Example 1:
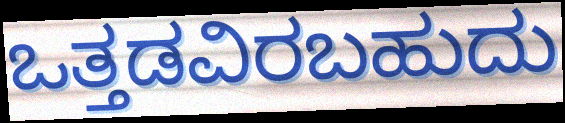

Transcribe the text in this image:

ಒತ್ತಡವಿರಬಹುದು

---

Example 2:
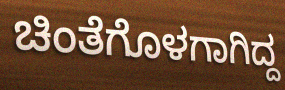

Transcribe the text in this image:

ಚಿಂತೆಗೊಳಗಾಗಿದ್ದ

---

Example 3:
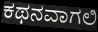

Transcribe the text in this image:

ಕಥನವಾಗಲಿ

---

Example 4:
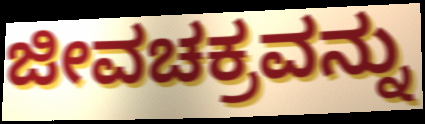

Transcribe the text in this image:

ಜೀವಚಕ್ರವನ್ನು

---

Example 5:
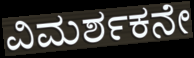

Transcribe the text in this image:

ವಿಮರ್ಶಕನೇ